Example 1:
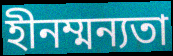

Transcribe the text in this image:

হীনম্মন্যতা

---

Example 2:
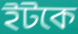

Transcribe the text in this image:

ইটকে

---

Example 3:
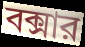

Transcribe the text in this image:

বক্সার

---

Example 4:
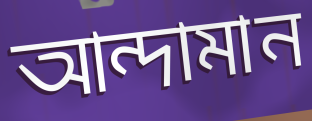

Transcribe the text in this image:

আন্দামান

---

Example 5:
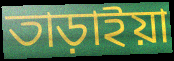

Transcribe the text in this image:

তাড়াইয়া